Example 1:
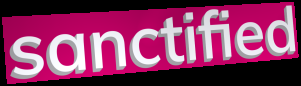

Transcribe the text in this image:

sanctified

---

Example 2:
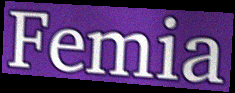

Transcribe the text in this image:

Femia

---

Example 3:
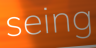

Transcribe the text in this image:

seing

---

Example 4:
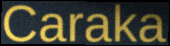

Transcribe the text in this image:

Caraka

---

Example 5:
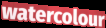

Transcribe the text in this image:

watercolour